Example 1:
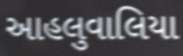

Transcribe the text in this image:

આહલુવાલિયા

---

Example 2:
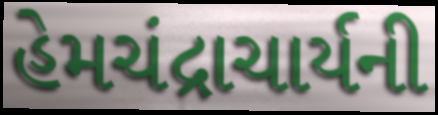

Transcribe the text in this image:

હેમચંદ્રાચાર્યની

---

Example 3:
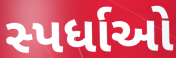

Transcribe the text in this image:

સ્પર્ધાઓ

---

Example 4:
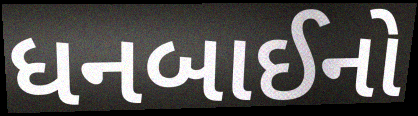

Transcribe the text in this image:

ધનબાઈનો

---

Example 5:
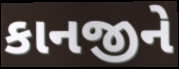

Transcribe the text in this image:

કાનજીને